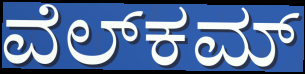
ವೆಲ್‍ಕಮ್